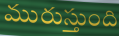
మురుస్తుంది